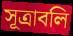
সূত্রাবলি